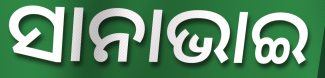
ସାନାଭାଇ